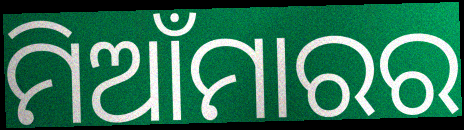
ମିଆଁମାରର